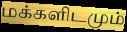
மக்களிடமும்